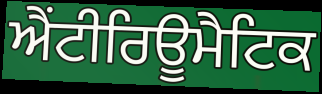
ਐਂਟੀਰਿਊਮੈਟਿਕ